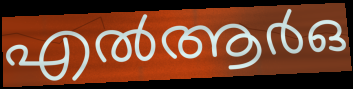
എൽആർഒ